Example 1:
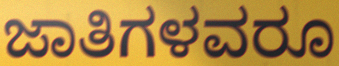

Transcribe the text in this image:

ಜಾತಿಗಳವರೂ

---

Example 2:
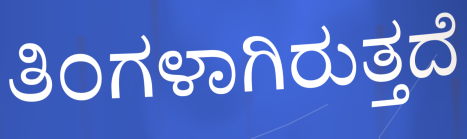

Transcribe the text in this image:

ತಿಂಗಳಾಗಿರುತ್ತದೆ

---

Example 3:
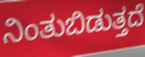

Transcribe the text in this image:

ನಿಂತುಬಿಡುತ್ತದೆ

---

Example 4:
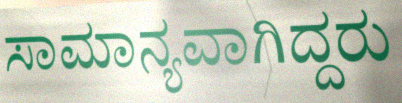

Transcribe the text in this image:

ಸಾಮಾನ್ಯವಾಗಿದ್ದರು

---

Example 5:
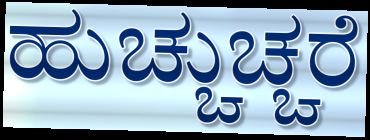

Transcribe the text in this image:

ಹುಚ್ಚುಚ್ಚರೆ